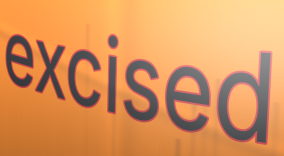
excised